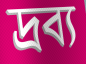
দ্রব্য